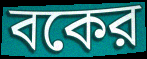
বকের